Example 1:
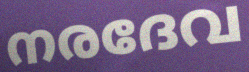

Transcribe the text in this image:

നരദേവ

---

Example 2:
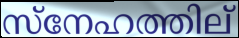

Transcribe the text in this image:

സ്നേഹത്തില്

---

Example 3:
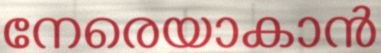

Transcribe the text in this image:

നേരെയാകാൻ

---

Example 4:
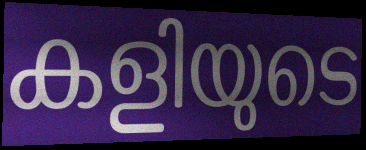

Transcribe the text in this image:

കളിയുടെ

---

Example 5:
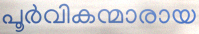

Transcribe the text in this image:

പൂർവികന്മാരായ